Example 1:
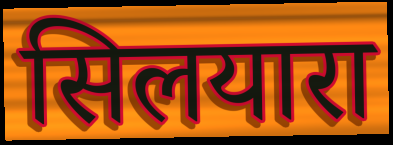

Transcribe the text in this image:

सिलयारा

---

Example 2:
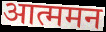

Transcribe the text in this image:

आत्ममन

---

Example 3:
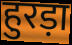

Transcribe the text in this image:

हुरड़ा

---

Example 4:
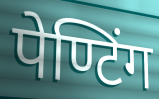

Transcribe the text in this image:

पेण्टिंग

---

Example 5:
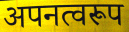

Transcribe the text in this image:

अपनत्वरूप